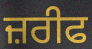
ਜ਼ਰੀਫ